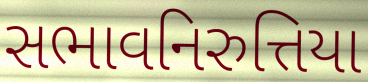
સભાવનિરુત્તિયા